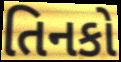
તિનકો